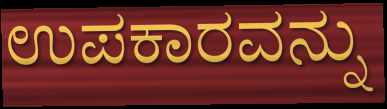
ಉಪಕಾರವನ್ನು